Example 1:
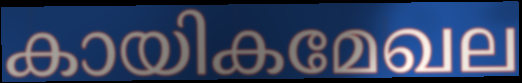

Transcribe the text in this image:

കായികമേഖല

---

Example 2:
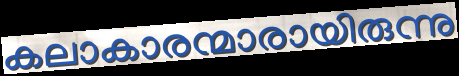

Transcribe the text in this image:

കലാകാരന്മാരായിരുന്നു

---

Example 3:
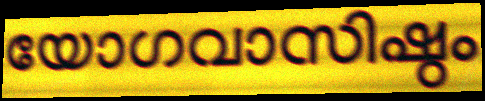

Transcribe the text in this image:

യോഗവാസിഷ്ഠം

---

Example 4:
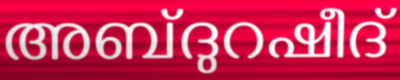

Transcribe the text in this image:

അബ്ദുറഷീദ്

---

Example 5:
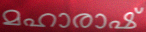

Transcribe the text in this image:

മഹാരാഷ്